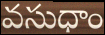
వసుధాం